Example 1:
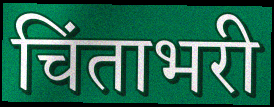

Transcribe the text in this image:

चिंताभरी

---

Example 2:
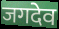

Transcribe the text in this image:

जगदेव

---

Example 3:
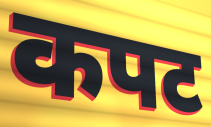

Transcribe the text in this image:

कपट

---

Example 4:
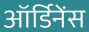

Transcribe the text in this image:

ऑर्डिनेंस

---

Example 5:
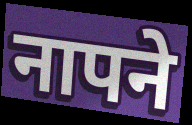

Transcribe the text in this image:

नापने